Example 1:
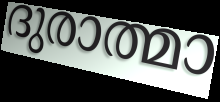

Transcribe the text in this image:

ദുരാത്മാ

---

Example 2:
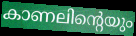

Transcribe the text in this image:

കാണലിന്റെയും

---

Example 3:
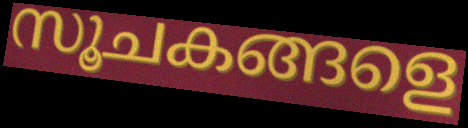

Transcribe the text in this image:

സൂചകങ്ങളെ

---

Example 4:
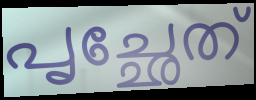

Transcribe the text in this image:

പൃച്ഛേത്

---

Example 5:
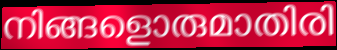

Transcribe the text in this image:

നിങ്ങളൊരുമാതിരി